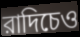
রাদিচেও